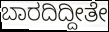
ಬಾರದಿದ್ದೀತೇ